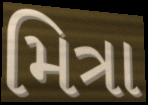
મિત્રા